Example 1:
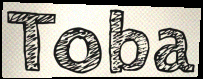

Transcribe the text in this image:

Toba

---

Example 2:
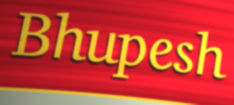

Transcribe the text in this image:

Bhupesh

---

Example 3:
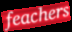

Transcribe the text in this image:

feachers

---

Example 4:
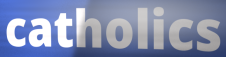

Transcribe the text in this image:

catholics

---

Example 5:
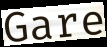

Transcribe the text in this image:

Gare